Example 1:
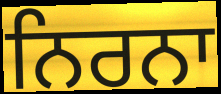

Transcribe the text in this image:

ਨਿਰਨਾ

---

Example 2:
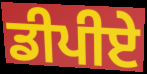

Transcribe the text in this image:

ਡੀਪੀਏ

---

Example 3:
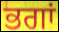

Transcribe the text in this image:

ਭਗਾਂ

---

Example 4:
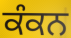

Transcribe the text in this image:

ਕੰਕਨ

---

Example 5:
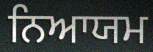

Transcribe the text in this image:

ਨਿਆਯਮ